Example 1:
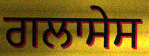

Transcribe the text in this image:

ਗਲਾਸੇਸ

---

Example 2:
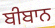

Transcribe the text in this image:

ਬੀਬਾਨ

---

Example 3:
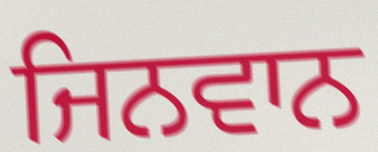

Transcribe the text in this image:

ਜਿਨਵਾਨ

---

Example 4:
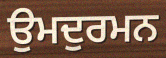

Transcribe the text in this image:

ਉਮਦੁਰਮਨ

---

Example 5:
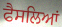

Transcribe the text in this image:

ਫੈਸਲਿਆਂ